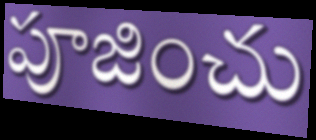
పూజించు